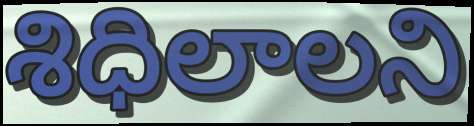
శిధిలాలని